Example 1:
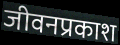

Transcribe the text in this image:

जीवनप्रकाश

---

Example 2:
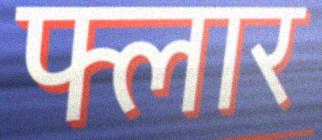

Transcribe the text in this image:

फ्लार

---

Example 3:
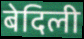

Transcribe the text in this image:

बेदिली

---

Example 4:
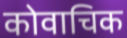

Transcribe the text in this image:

कोवाचिक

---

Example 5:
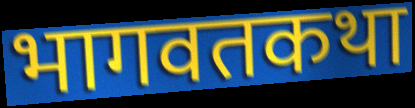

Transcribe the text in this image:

भागवतकथा